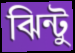
ঝিন্টু